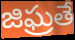
జిఘ్రతే